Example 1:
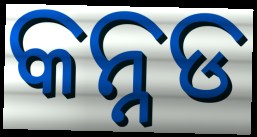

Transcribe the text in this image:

କନ୍ନଡ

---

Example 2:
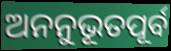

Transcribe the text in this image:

ଅନନୁଭୂତପୂର୍ବ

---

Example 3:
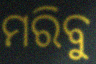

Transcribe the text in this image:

ମରିବୁ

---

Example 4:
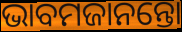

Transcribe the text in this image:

ଭାବମଜାନନ୍ତୋ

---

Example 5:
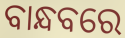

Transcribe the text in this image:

ବାନ୍ଧବରେ